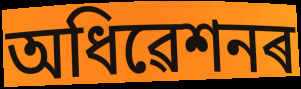
অধিৱেশনৰ